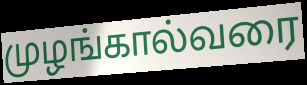
முழங்கால்வரை